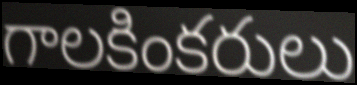
గాలకింకరులు